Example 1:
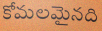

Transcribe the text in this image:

కోమలమైనది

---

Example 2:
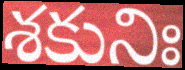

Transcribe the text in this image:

శకునిః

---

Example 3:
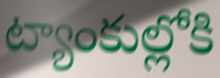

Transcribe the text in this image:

ట్యాంకుల్లోకి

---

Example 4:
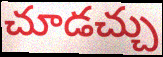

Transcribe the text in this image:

చూడచ్చు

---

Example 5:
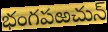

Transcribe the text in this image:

భంగపఱచున్